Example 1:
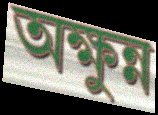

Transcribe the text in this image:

অক্ষুন্ন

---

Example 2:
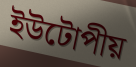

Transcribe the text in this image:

ইউটোপীয়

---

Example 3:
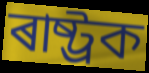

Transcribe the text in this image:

ৰাষ্ট্ৰক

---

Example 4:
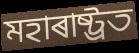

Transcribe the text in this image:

মহাৰাষ্ট্ৰত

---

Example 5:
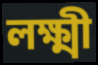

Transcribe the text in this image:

লক্ষ্মী